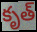
కృత్